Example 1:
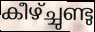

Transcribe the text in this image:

കീഴ്ച്ചുണ്ടു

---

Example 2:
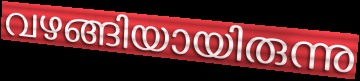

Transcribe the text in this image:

വഴങ്ങിയായിരുന്നു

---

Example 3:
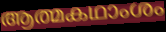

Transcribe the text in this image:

ആത്മകഥാംശം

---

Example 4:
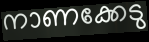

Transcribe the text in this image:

നാണക്കേടു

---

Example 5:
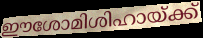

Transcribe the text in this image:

ഈശോമിശിഹായ്ക്ക്